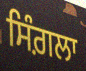
ਸਿੰਗ਼ਲਾ